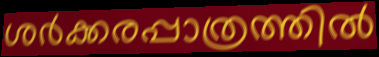
ശർക്കരപ്പാത്രത്തിൽ